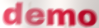
demo